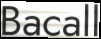
Bacall